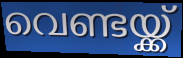
വെണ്ടയ്ക്ക്